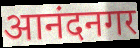
आनंदनगर